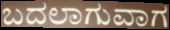
ಬದಲಾಗುವಾಗ